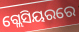
ଗ୍ଲେସିୟରରେ